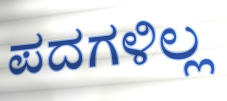
ಪದಗಳಿಲ್ಲ